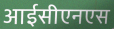
आईसीएनएस